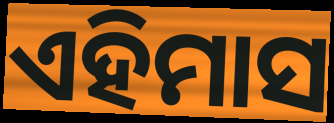
ଏହିମାସ